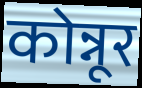
कोन्नूर